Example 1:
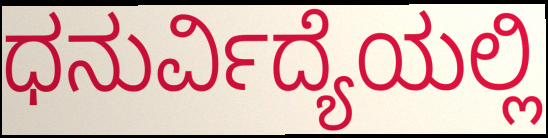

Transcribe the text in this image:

ಧನುರ್ವಿದ್ಯೆಯಲ್ಲಿ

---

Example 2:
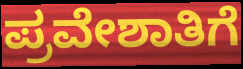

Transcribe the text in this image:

ಪ್ರವೇಶಾತಿಗೆ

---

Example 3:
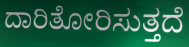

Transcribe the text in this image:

ದಾರಿತೋರಿಸುತ್ತದೆ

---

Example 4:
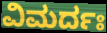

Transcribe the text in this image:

ವಿಮರ್ದಃ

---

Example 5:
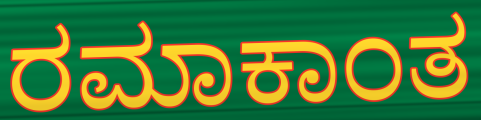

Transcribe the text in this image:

ರಮಾಕಾಂತ